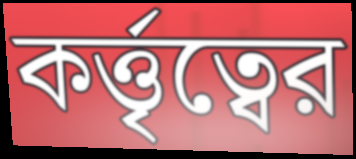
কর্ত্তৃত্বের